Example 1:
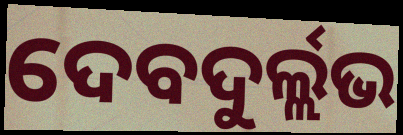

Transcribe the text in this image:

ଦେବଦୁର୍ଲ୍ଲଭ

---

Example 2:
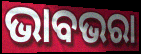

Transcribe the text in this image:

ଭାବଭରା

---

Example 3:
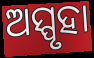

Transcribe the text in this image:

ଅସ୍ପୃହା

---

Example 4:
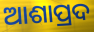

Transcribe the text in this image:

ଆଶାପ୍ରଦ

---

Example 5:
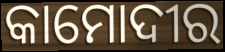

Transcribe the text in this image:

କାମୋଦୀର